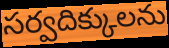
సర్వదిక్కులను